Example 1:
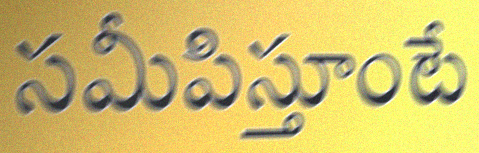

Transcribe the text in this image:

సమీపిస్తూంటే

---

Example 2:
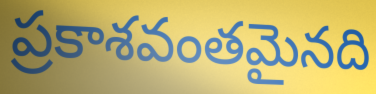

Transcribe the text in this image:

ప్రకాశవంతమైనది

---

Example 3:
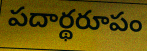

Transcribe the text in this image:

పదార్థరూపం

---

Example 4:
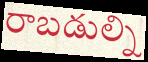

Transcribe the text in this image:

రాబడుల్ని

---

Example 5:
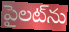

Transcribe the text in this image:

పైలట్‌ను